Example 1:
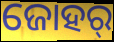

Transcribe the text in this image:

ଜୋହର୍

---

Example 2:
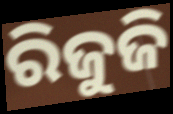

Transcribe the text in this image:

ରିଜୁଜି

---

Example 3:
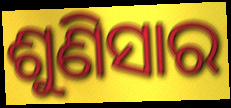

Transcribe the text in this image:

ଶୁଣିସାର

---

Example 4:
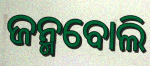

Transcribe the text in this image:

ଜନ୍ମବୋଲି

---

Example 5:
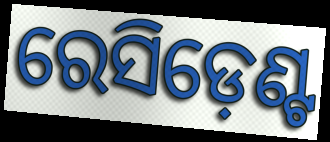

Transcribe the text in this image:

ରେସିଡ଼େଣ୍ଟ